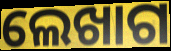
ଲେଖାଗ